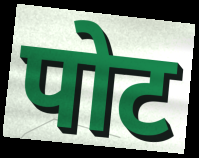
पोट